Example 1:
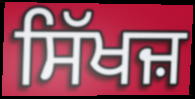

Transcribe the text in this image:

ਸਿੱਖਜ਼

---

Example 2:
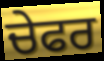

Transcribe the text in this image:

ਚੇਫਰ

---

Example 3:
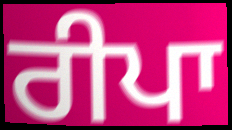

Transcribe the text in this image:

ਰੀਪਾ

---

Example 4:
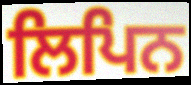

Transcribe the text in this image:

ਲਿਪਿਨ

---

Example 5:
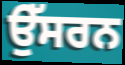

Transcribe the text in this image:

ਉੱਸਰਨ